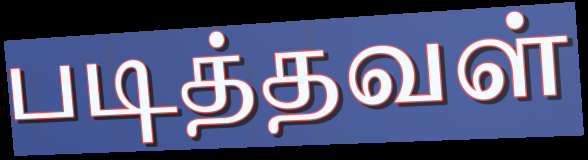
படித்தவள்